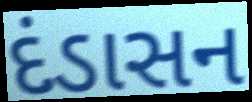
દંડાસન